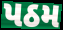
પઠમ